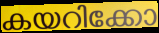
കയറിക്കോ